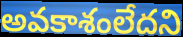
అవకాశంలేదని